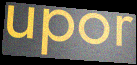
upor